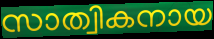
സാത്വികനായ